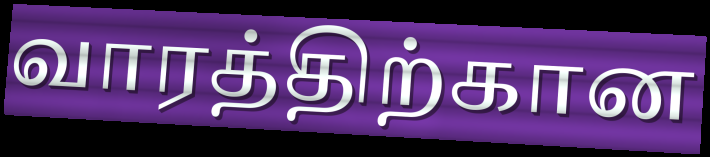
வாரத்திற்கான